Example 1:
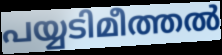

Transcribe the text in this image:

പയ്യടിമീത്തൽ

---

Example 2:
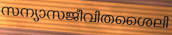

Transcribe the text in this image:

സന്യാസജീവിതശൈലി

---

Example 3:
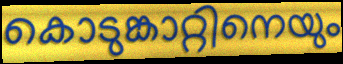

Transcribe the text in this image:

കൊടുങ്കാറ്റിനെയും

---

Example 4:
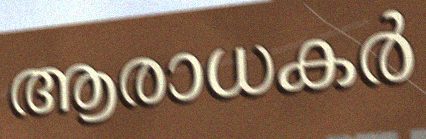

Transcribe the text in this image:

ആരാധകർ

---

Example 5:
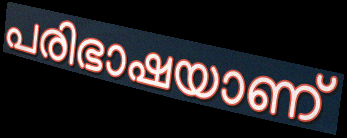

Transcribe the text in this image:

പരിഭാഷയാണ്